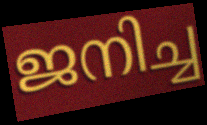
ജനിച്ച